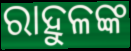
ରାହୁଳଙ୍କ